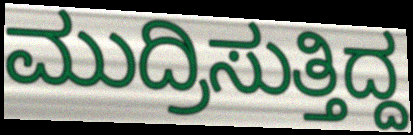
ಮುದ್ರಿಸುತ್ತಿದ್ದ